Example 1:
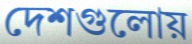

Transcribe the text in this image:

দেশগুলোয়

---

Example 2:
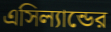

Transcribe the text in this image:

এসিল্যান্ডের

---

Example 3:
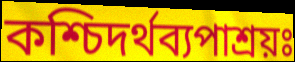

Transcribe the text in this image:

কশ্চিদর্থব্যপাশ্রয়ঃ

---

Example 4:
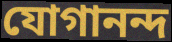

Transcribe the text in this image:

যোগানন্দ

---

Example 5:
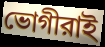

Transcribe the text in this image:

ভোগীরাই